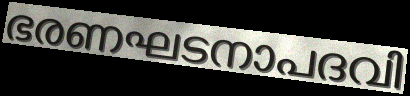
ഭരണഘടനാപദവി